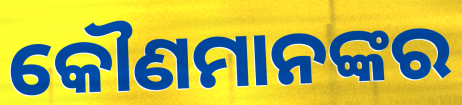
କୌଣମାନଙ୍କର